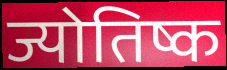
ज्योतिष्क